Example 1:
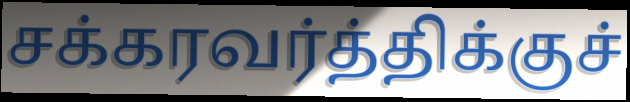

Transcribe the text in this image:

சக்கரவர்த்திக்குச்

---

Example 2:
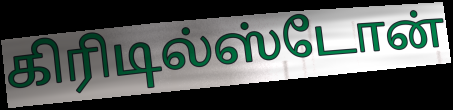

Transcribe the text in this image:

கிரிடில்ஸ்டோன்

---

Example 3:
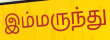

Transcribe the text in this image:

இம்மருந்து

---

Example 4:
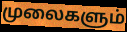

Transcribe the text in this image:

முலைகளும்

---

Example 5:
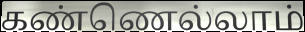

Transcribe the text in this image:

கண்ணெல்லாம்